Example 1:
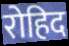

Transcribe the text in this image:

रोहिद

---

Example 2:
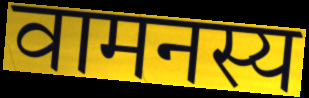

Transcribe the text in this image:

वामनस्य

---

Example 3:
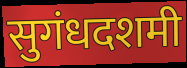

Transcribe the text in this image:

सुगंधदशमी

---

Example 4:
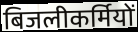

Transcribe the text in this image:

बिजलीकर्मियों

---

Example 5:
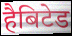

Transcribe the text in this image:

हैबिटेड